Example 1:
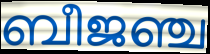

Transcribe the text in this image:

ബീജഞ്ച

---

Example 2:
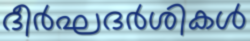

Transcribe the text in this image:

ദീർഘദർശികൾ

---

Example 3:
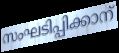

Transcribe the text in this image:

സംഘടിപ്പിക്കാന്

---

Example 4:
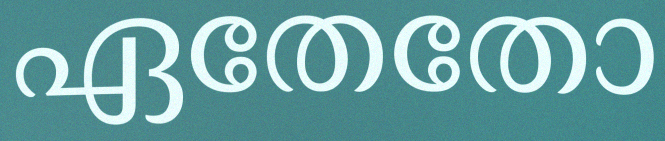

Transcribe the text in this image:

ഏതേതോ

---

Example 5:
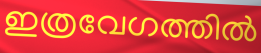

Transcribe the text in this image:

ഇത്രവേഗത്തിൽ